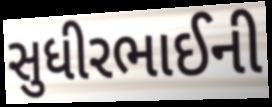
સુધીરભાઈની